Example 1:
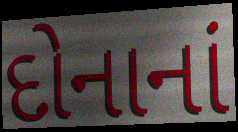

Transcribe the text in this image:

દોનાનાં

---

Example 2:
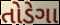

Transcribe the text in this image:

તોડેગા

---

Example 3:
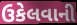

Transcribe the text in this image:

ઉકેલવાની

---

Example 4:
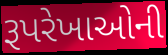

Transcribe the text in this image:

રૂપરેખાઓની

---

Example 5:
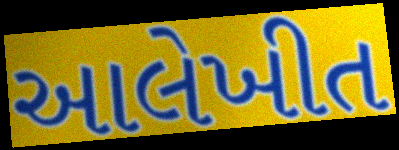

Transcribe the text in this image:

આલેખીત